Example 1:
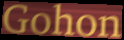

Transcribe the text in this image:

Gohon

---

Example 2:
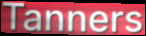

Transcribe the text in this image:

Tanners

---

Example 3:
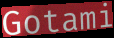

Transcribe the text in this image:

Gotami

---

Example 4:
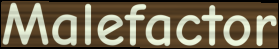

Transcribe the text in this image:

Malefactor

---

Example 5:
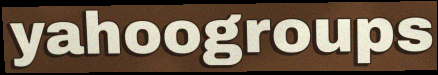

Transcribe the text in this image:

yahoogroups